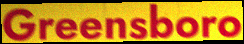
Greensboro